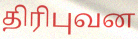
திரிபுவன